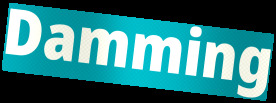
Damming